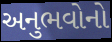
અનુભવોનો